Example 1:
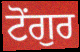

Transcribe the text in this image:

ਟੋਂਗੁਰ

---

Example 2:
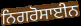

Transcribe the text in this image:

ਨਿਗਰੋਸਾਈਨ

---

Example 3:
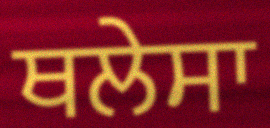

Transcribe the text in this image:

ਥਲੇਸਾ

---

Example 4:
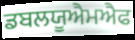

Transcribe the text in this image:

ਡਬਲਯੂਐਮਐਫ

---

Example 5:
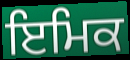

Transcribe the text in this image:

ਇਮਿਕ